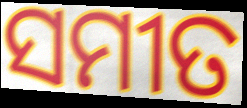
ସମୀତ